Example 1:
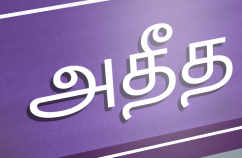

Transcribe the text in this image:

அதீத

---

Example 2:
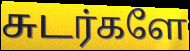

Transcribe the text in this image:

சுடர்களே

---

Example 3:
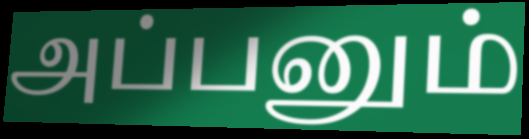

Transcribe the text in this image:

அப்பனும்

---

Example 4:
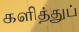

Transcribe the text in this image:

களித்துப்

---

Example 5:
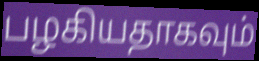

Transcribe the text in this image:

பழகியதாகவும்